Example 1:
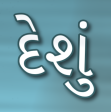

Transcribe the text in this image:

દેશું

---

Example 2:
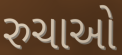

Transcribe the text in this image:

રુચાઓ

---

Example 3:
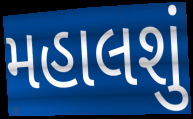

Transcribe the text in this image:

મહાલશું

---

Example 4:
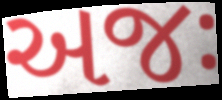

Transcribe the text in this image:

અજઃ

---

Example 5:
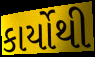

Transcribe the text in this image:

કાર્યોથી